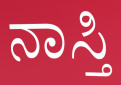
ನಾಸ್ತಿ